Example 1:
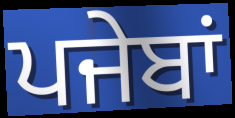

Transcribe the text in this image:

ਪਜੇਬਾਂ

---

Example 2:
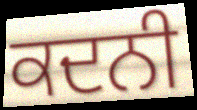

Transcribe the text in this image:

ਕਦਨੀ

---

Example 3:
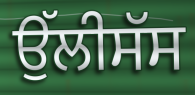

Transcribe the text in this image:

ਉੱਲੀਸੱਸ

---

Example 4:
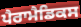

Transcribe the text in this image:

ਪੈਰਾਮੈਡਿਕਸ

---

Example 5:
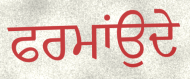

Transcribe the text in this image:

ਫਰਮਾਂਉਦੇ